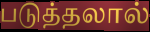
படுத்தலால்